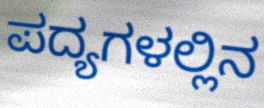
ಪದ್ಯಗಳಲ್ಲಿನ